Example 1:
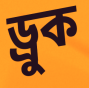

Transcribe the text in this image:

ড্রুক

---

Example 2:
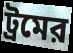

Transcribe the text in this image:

ট্রমের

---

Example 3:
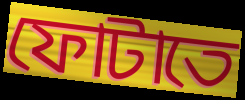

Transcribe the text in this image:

ফোটাতে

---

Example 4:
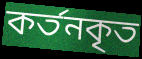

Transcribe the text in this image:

কর্তনকৃত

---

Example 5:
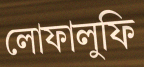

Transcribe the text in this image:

লোফালুফি